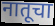
नातूचा